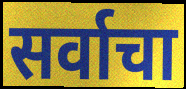
सर्वाचा